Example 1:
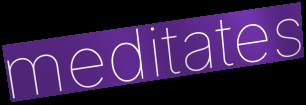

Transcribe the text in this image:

meditates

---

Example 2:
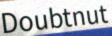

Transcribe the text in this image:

Doubtnut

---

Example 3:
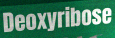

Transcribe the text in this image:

Deoxyribose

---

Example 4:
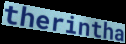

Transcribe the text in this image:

therintha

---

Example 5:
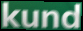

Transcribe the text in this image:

kund